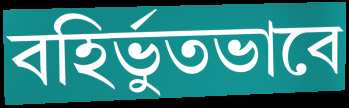
বহির্ভুতভাবে